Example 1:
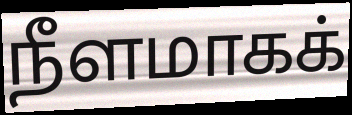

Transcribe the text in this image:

நீளமாகக்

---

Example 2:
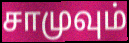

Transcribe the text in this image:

சாமுவும்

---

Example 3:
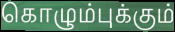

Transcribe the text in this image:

கொழும்புக்கும்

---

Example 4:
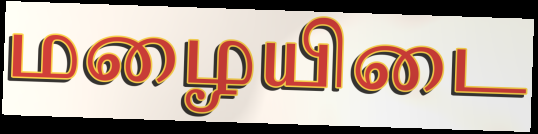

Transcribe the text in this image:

மழையிடை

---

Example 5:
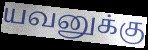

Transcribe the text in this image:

யவனுக்கு